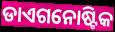
ଡାଏଗନୋଷ୍ଟିକ